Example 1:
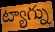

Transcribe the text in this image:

ట్యాగ్ను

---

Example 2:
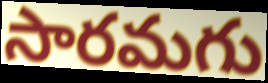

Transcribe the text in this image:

సారమగు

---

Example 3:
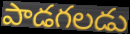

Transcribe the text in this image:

పాడగలడు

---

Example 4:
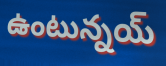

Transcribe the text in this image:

ఉంటున్నయ్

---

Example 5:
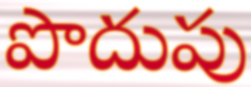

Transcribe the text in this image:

పొదుపు